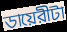
ডায়েরীটা